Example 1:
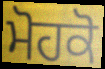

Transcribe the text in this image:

ਮੋਹਕੋ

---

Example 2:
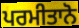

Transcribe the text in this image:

ਪਰਮੀਤਾਨੋ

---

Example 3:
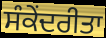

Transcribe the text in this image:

ਸੰਕੇਂਦਰੀਤਾ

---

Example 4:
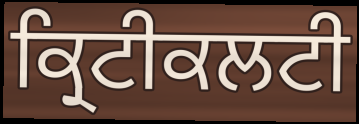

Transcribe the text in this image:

ਕ੍ਰਿਟੀਕਲਟੀ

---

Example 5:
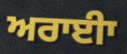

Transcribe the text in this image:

ਅਰਾਈਾ